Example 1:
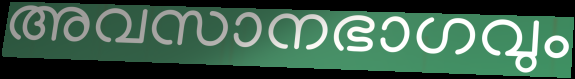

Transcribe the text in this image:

അവസാനഭാഗവും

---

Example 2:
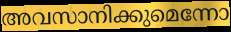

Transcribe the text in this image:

അവസാനിക്കുമെന്നോ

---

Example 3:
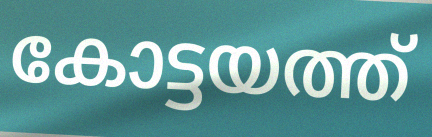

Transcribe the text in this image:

കോട്ടയത്ത്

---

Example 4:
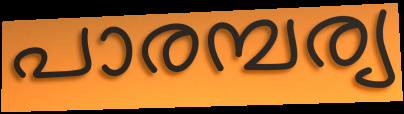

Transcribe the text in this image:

പാരമ്പര്യ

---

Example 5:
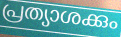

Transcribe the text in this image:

പ്രത്യാശക്കും